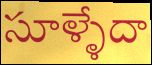
సూళ్ళేదా